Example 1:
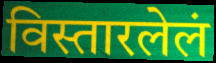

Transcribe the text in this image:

विस्तारलेलं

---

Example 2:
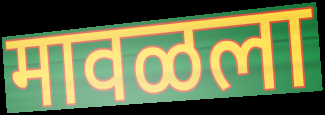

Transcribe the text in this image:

मावळला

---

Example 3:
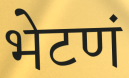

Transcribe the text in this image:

भेटणं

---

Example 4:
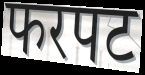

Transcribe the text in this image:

फरपट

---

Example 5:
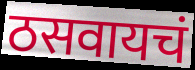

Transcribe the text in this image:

ठसवायचं